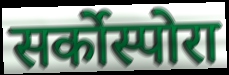
सर्कोस्पोरा